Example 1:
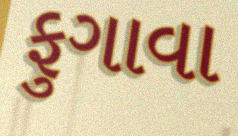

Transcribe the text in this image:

ફુગાવા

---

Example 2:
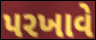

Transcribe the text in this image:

પરખાવે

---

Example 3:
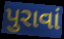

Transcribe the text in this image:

પુરાવાં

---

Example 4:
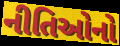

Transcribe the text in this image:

નીતિઓનો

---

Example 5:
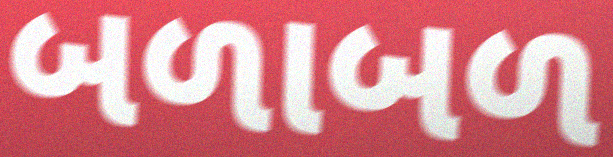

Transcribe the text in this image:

બળાબળ